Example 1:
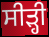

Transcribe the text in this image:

ਸੀੜ੍ਹੀ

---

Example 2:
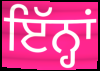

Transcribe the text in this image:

ਇੱਨ੍ਹਾਂ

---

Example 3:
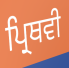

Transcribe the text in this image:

ਪ੍ਰਿਥਵੀ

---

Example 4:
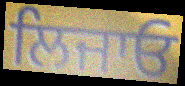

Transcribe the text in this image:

ਲਿਜਾਓ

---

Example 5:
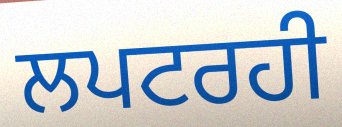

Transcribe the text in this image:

ਲਪਟਰਹੀ